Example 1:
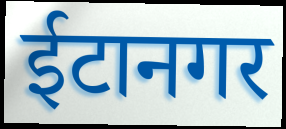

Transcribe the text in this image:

ईटानगर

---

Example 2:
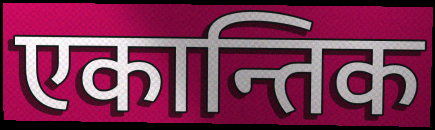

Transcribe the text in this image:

एकान्तिक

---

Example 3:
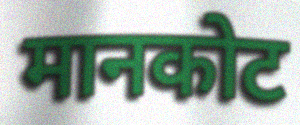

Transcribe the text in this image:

मानकोट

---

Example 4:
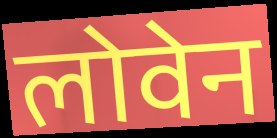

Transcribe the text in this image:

लोवेन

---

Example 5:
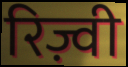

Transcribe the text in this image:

रिज़्वी